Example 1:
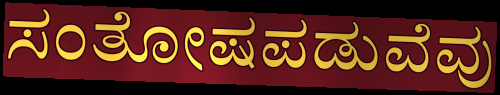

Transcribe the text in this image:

ಸಂತೋಷಪಡುವೆವು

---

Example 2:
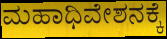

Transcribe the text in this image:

ಮಹಾಧಿವೇಶನಕ್ಕೆ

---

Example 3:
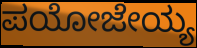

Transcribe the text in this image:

ಪಯೋಜೇಯ್ಯ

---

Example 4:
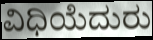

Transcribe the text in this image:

ವಿಧಿಯೆದುರು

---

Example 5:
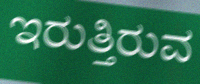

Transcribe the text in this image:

ಇರುತ್ತಿರುವ